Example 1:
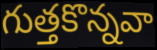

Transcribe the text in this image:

గుత్తకొన్నవా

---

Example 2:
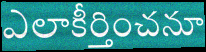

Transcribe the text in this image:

ఎలాకీర్తించనూ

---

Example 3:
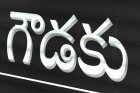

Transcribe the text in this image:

గౌడకు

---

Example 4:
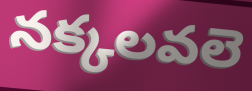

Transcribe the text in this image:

నక్కలవలె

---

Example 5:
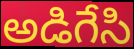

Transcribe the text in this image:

అడిగేసి